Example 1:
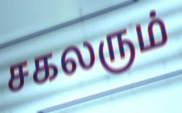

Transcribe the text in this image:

சகலரும்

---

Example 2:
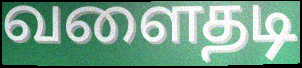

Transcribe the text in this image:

வளைதடி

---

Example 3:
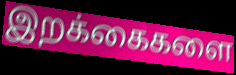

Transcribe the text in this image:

இறக்கைகளை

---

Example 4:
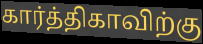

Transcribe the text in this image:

கார்த்திகாவிற்கு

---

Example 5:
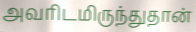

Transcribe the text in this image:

அவரிடமிருந்துதான்